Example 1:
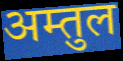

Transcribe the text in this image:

अम्तुल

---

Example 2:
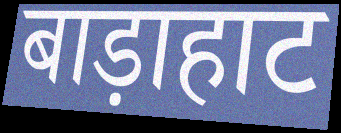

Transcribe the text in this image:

बाड़ाहाट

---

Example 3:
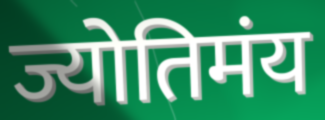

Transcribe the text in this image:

ज्योतिमंय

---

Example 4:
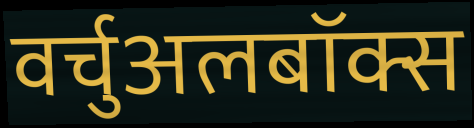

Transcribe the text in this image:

वर्चुअलबॉक्स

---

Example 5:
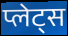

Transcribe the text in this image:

प्‍लेट्स